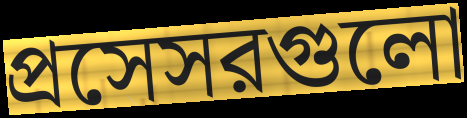
প্রসেসরগুলো